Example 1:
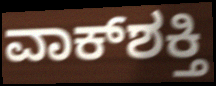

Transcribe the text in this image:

ವಾಕ್‌ಶಕ್ತಿ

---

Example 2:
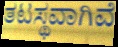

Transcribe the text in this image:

ತಟಸ್ಥವಾಗಿವೆ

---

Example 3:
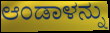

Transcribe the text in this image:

ಆಂಡಾಳನ್ನು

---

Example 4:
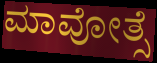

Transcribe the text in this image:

ಮಾವೋತ್ಸೆ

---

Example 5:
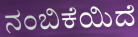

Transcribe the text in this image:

ನಂಬಿಕೆಯಿದೆ